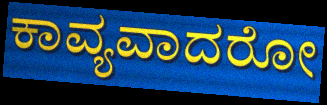
ಕಾವ್ಯವಾದರೋ